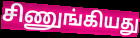
சிணுங்கியது